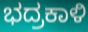
ಭದ್ರಕಾಳಿ